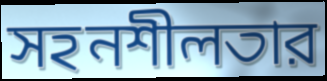
সহনশীলতার